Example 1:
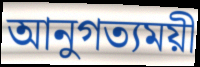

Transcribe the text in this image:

আনুগত্যময়ী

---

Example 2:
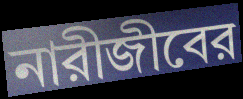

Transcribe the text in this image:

নারীজীবের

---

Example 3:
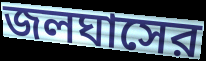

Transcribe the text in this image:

জলঘাসের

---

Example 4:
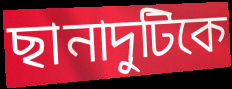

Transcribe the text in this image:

ছানাদুটিকে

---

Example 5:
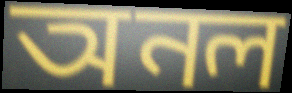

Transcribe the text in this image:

অনল